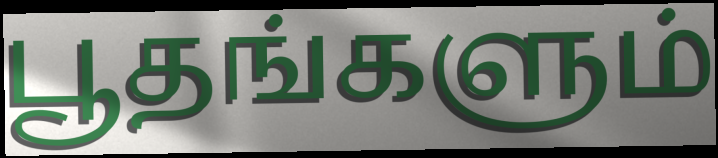
பூதங்களும்